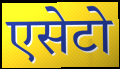
एसेटो